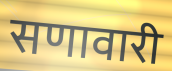
सणावारी